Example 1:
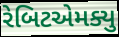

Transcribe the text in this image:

રેબિટએમક્યુ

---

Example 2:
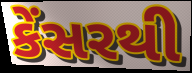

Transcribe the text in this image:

કેંસરથી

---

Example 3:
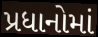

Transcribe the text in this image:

પ્રધાનોમાં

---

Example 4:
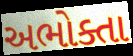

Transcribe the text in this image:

અભોક્તા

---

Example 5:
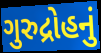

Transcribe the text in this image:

ગુરુદ્રોહનું